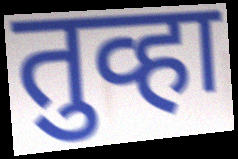
तुव्हा